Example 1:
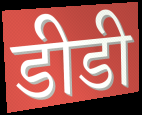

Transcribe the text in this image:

डीडी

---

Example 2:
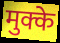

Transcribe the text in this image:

मुक्‍के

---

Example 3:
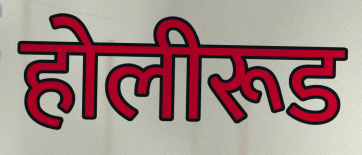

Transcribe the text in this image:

होलीरूड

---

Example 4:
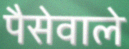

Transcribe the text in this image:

पैसेवाले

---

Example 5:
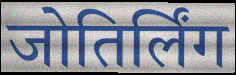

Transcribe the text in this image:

जोतिर्लिंग